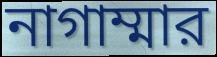
নাগাম্মার